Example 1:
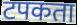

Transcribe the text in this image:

टपकता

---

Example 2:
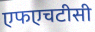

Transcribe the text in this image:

एफएचटीसी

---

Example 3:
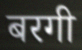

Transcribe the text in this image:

बरगी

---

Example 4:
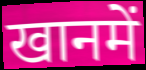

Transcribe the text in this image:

खानमें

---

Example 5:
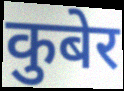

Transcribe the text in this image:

कुबेर